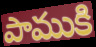
పాముకి